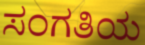
ಸಂಗತಿಯ